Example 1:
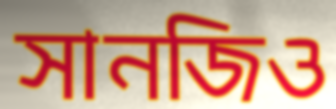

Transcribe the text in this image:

সানজিও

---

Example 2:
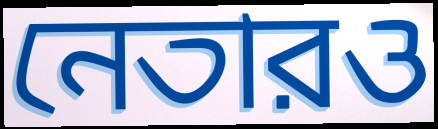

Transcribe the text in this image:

নেতারও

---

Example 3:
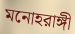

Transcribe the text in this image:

মনোহরাঙ্গী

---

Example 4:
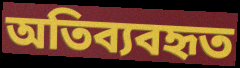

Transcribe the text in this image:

অতিব্যবহৃত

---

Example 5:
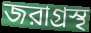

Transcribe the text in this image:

জরাগ্রস্থ